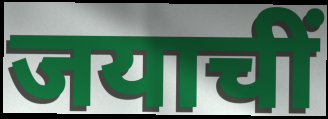
जयाचीं